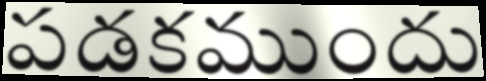
పడకముందు